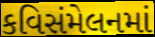
કવિસંમેલનમાં